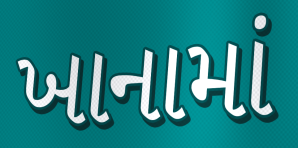
ખાનામાં